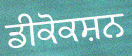
ਡੀਕੋਕਸ਼ਨ